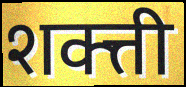
शक्त्ती